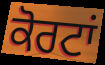
ਕੋਰਟਾਂ